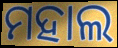
ମହାଲ